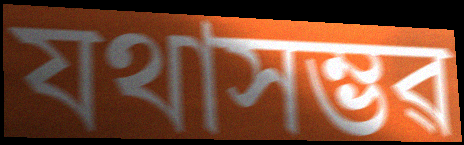
যথাসম্ভৱ